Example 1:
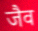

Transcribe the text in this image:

जैव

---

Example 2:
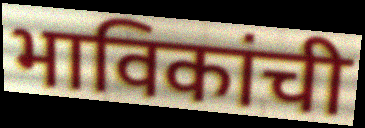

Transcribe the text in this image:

भाविकांची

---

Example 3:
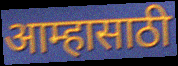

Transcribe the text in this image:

आम्हासाठी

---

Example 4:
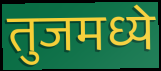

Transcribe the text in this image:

तुजमध्ये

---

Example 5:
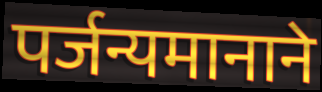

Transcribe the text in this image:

पर्जन्यमानाने